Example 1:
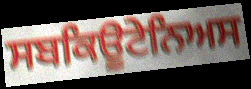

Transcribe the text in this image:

ਸਬਕਿਊਟੇਨਿਅਸ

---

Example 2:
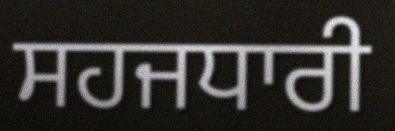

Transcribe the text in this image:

ਸਹਜਧਾਰੀ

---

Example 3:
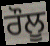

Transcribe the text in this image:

ਰੌਲੂ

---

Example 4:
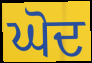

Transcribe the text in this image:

ਘੋਦ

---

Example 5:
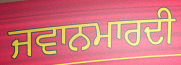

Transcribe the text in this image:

ਜਵਾਨਮਾਰਦੀ